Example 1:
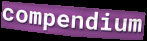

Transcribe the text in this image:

compendium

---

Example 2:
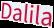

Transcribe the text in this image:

Dalila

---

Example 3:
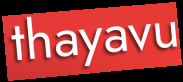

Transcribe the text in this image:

thayavu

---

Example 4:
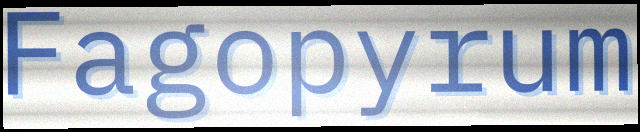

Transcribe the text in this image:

Fagopyrum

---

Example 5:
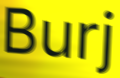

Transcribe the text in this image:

Burj